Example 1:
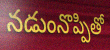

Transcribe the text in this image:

నడుంనొప్పితో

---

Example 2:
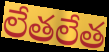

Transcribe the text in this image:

లేతలేత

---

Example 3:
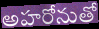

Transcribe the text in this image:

అహరోనుతో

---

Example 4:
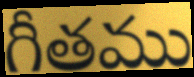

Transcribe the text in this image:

గీతము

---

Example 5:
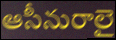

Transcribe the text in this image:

ఆసీనురాలై